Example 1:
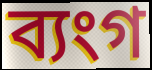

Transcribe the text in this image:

ব্যংগ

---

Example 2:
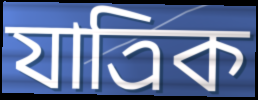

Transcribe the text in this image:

যাত্ৰিক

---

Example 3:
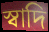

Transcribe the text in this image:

স্বাদি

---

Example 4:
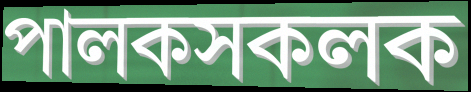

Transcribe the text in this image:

পালকসকলক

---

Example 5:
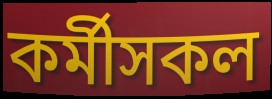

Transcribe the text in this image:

কৰ্মীসকল